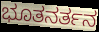
ಭೂತನರ್ತನ